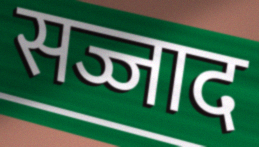
सज्जाद